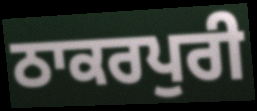
ਠਾਕਰਪੁਰੀ